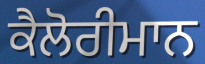
ਕੈਲੋਰੀਮਾਨ